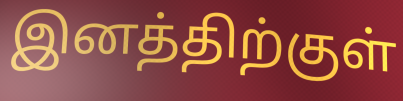
இனத்திற்குள்